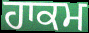
ਹਾਕਮ